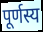
पूर्णस्य